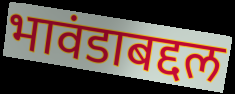
भावंडाबद्दल